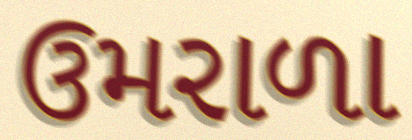
ઉમરાળા